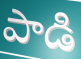
పాడి